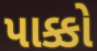
પાક્કો